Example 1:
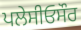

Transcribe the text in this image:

ਪਲੇਸੀਓਸੌਰ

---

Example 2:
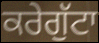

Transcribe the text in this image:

ਕਰੇਗੁੱਟਾ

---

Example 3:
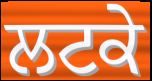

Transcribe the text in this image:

ਲਟਕੇ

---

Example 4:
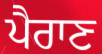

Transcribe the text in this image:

ਪੈਰਾਣ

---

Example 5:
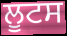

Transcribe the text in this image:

ਲੂਟਸ